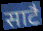
साटै